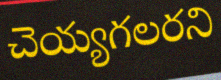
చెయ్యగలరని